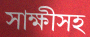
সাক্ষীসহ